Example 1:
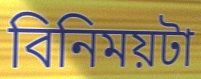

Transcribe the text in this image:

বিনিময়টা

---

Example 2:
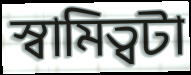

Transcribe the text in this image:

স্বামিত্বটা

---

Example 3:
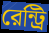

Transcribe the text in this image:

রেন্ট্রি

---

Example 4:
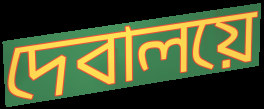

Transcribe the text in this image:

দেবালয়ে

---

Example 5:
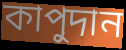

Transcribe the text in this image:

কাপুদান